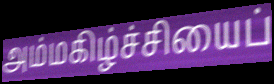
அம்மகிழ்ச்சியைப்